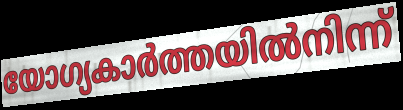
യോഗ്യകാർത്തയിൽനിന്ന്